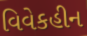
વિવેકહીન